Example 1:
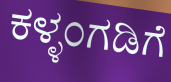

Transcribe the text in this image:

ಕಳ್ಳಂಗಡಿಗೆ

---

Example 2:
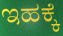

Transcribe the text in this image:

ಇಹಕ್ಕೆ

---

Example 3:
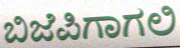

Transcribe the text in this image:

ಬಿಜೆಪಿಗಾಗಲಿ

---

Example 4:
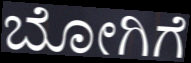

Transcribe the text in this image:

ಬೋಗಿಗೆ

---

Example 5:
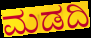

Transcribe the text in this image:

ಮಡದಿ